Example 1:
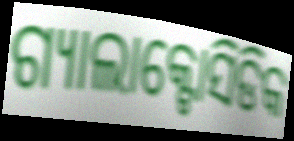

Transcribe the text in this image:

ଗ୍ୟାଲାକ୍ଟୋସିଡିକ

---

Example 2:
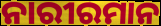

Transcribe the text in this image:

ନାରୀରମାନ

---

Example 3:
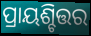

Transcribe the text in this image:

ପ୍ରାୟଶ୍ଚିତ୍ତର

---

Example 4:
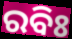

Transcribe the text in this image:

ରବିଃ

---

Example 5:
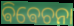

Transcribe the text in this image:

ଵିଵେଚନା